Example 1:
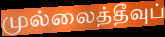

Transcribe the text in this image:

முல்லைத்தீவுப்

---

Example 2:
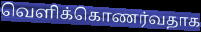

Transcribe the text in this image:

வெளிக்கொணர்வதாக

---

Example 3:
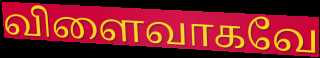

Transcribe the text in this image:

விளைவாகவே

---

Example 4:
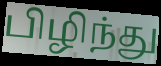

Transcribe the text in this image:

பிழிந்து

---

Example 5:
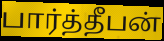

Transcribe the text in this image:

பார்த்தீபன்